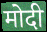
मोदी